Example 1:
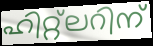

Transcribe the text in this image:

ഹിറ്റ്ലറിന്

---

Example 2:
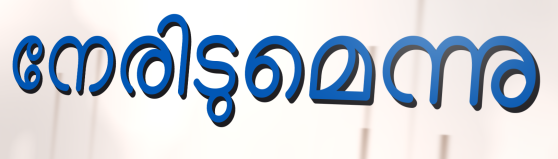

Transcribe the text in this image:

നേരിടുമെന്നു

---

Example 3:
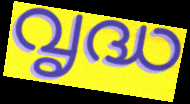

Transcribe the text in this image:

വൃദ്ധ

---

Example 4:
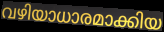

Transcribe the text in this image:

വഴിയാധാരമാക്കിയ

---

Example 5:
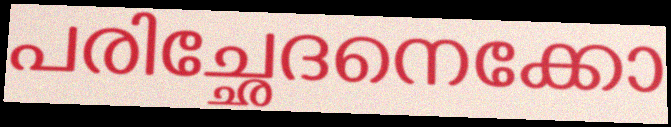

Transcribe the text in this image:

പരിച്ഛേദനെക്കോ